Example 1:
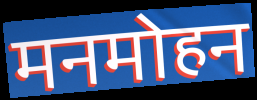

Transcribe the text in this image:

मनमोहन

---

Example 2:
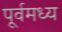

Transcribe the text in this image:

पूर्वमध्य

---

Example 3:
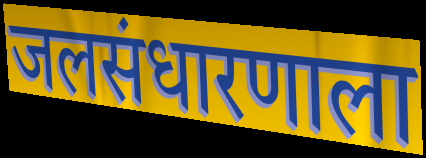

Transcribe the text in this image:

जलसंधारणाला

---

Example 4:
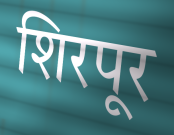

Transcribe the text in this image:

शिरपूर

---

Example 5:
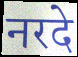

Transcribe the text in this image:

नरदे